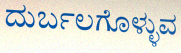
ದುರ್ಬಲಗೊಳ್ಳುವ